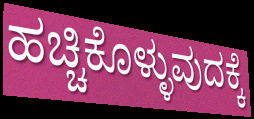
ಹಚ್ಚಿಕೊಳ್ಳುವುದಕ್ಕೆ